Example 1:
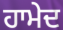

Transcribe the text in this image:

ਹਾਮੇਦ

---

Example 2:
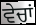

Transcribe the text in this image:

ਵੇਚਾਂ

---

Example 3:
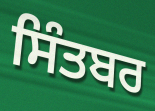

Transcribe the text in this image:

ਸਿੰਤਬਰ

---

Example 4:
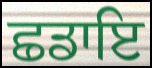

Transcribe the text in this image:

ਛਡਾਇ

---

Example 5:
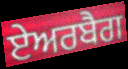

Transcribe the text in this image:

ਏਅਰਬੈਗ